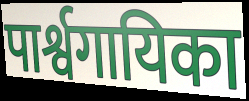
पार्श्वगायिका